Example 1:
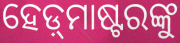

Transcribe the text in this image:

ହେଡ଼୍‌ମାଷ୍ଟରଙ୍କୁ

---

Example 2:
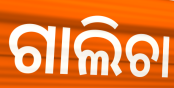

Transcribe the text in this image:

ଗାଲିଚା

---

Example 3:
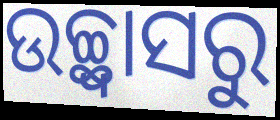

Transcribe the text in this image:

ଉଚ୍ଛ୍ୱାସରୁ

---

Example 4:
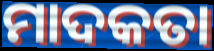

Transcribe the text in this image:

ମାଦକତା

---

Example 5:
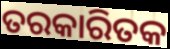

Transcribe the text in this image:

ତରକାରିତକ